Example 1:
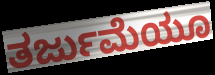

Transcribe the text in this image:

ತರ್ಜುಮೆಯೂ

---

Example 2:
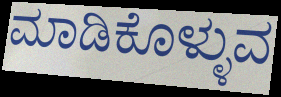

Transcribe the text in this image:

ಮಾಡಿಕೊಳ್ಳುವ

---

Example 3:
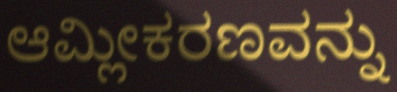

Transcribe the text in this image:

ಆಮ್ಲೀಕರಣವನ್ನು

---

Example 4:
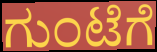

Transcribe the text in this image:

ಗುಂಟೆಗೆ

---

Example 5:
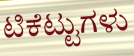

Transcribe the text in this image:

ಟಿಕೆಟ್ಟುಗಳು